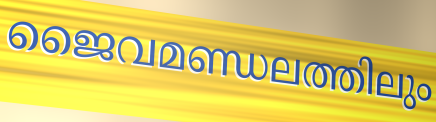
ജൈവമണ്ഡലത്തിലും